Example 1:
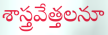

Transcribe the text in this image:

శాస్త్రవేత్తలనూ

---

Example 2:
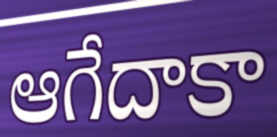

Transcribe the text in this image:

ఆగేదాకా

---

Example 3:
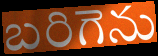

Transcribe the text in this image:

బరిగెను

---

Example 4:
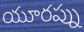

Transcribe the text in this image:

యూరప్ను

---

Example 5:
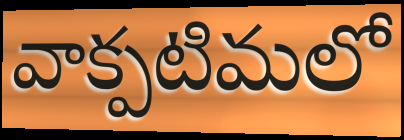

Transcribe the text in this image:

వాక్పటిమలో